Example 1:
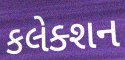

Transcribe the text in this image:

કલેક્શન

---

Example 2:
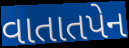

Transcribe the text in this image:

વાતાતપેન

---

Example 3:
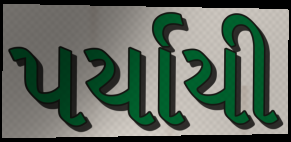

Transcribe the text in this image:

પર્યાયી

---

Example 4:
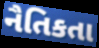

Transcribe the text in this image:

નૈતિકતા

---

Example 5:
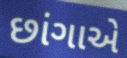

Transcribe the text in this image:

છાંગાએ